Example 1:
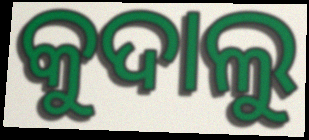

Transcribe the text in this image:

କୁଦାଲୁ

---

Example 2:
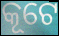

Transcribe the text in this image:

କୂଟେ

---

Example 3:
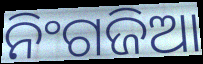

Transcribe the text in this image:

ନିଂଗଜିଆ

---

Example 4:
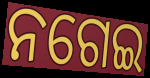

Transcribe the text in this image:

ନଗେଇ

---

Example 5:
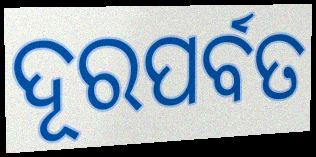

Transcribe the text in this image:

ଦୂରପର୍ବତ